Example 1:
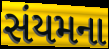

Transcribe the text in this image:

સંયમના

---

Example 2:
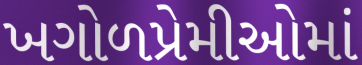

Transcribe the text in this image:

ખગોળપ્રેમીઓમાં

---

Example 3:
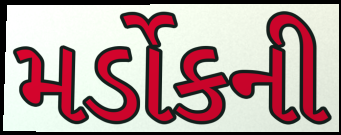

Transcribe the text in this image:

મર્ડોકની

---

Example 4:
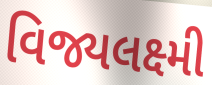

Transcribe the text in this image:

વિજ્યલક્ષ્મી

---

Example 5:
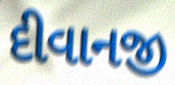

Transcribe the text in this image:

દીવાનજી